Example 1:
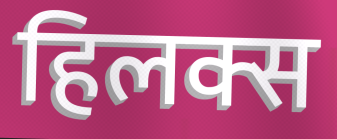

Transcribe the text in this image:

हिलक्स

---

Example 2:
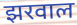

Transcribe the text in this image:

झरवाल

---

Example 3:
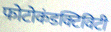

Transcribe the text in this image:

फोटोकंडक्टिविटी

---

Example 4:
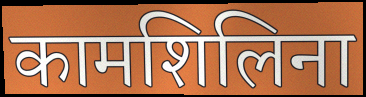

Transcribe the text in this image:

कामशिलिना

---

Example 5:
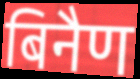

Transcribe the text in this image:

बिनैण